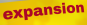
expansion